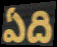
ఏది